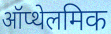
ऑप्थेलमिक